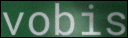
vobis